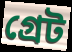
গ্ৰেট